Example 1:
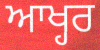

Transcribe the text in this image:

ਆਖ੍ਹਰ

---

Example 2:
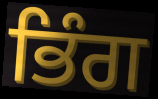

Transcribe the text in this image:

ਭਿੰਗ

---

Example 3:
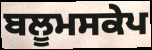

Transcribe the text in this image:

ਬਲੂਮਸਕੇਪ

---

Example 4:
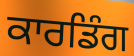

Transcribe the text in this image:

ਕਾਰਡਿੰਗ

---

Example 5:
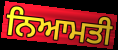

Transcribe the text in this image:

ਨਿਆਮਤੀ